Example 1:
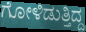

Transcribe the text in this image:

ಗೋಳಿಡುತ್ತಿದ್ದ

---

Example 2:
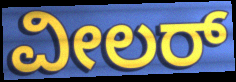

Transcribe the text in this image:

ವೀಲರ್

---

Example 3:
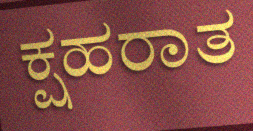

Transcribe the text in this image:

ಕ್ಷಹರಾತ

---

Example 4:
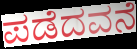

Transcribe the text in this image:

ಪಡೆದವನೆ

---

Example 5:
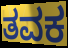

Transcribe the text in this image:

ತವಕ